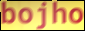
bojho